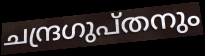
ചന്ദ്രഗുപ്തനും